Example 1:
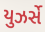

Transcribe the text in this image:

યુઝર્સે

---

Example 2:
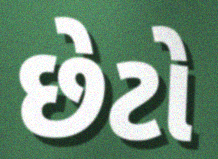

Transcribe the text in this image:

છેટો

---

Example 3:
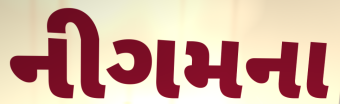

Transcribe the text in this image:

નીગમના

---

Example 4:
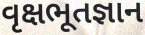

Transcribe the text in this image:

વૃક્ષભૂતજ્ઞાન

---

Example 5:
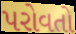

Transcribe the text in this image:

પરોવતો